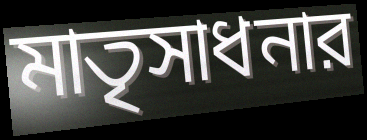
মাতৃসাধনার